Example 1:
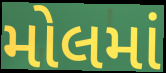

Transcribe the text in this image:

મોલમાં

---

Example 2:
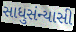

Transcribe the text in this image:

સાધુસંન્યાસી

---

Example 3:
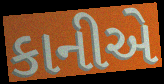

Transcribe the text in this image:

કાનીએ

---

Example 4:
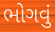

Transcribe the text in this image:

ભોગવું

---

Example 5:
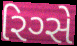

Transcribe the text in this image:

રિગ્સે